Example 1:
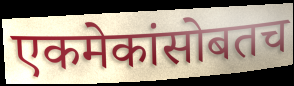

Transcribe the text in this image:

एकमेकांसोबतच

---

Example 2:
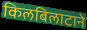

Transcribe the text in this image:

किलबिलाटाने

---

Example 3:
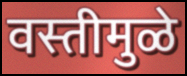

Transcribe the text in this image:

वस्तीमुळे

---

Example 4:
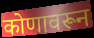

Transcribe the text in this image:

कोणावरून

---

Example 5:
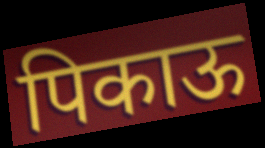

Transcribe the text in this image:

पिकाऊ